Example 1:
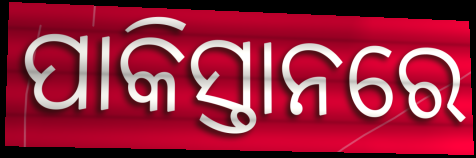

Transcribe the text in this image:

ପାକିସ୍ତାନରେ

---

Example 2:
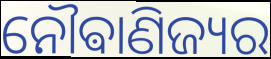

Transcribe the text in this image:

ନୌଵାଣିଜ୍ୟର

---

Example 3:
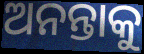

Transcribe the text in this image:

ଅନନ୍ତାକୁ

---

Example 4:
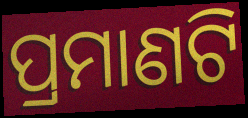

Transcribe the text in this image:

ପ୍ରମାଣଟି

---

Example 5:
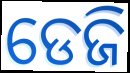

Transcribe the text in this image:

ଡେଜି